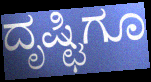
ದೃಷ್ಟಿಗೂ